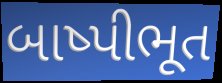
બાષ્પીભૂત